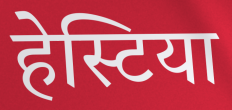
हेस्टिया